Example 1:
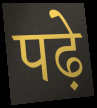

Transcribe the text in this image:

पढ़े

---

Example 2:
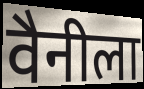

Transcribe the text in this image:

वैनीला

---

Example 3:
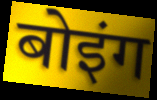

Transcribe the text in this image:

बोइंग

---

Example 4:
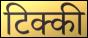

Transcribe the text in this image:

टिक्की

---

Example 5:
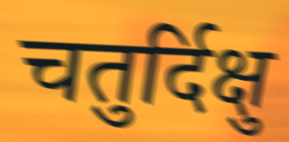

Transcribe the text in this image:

चतुर्दिक्षु